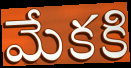
మేకకి